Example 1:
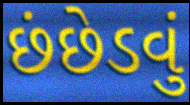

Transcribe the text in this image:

છંછેડવું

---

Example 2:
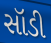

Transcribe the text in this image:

સૉડી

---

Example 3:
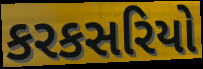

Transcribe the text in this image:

કરકસરિયો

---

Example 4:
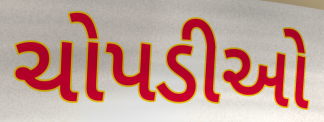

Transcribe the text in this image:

ચોપડીઓ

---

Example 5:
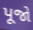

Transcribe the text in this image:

પૂજો